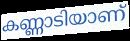
കണ്ണാടിയാണ്